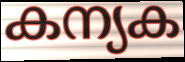
കന്യക